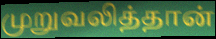
முறுவலித்தான்